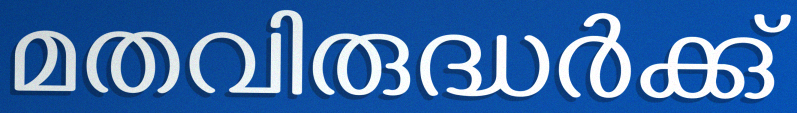
മതവിരുദ്ധർക്കു്